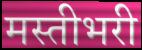
मस्तीभरी